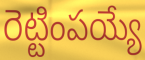
రెట్టింపయ్యే